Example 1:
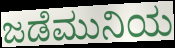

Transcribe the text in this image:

ಜಡೆಮುನಿಯ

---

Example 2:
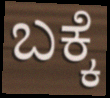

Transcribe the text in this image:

ಬಕ್ಕೆ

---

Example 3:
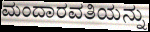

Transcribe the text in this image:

ಮಂದಾರವತಿಯನ್ನು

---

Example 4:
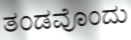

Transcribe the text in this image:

ತಂಡವೊಂದು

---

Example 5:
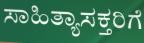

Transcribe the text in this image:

ಸಾಹಿತ್ಯಾಸಕ್ತರಿಗೆ